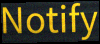
Notify